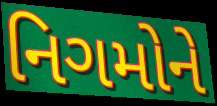
નિગમોને